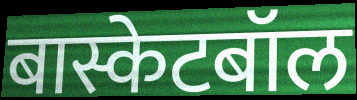
बास्केटबॉल